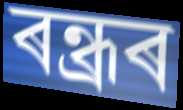
ৰন্ধ্ৰৰ